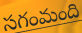
సగంమంది